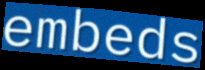
embeds